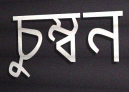
চুম্বন